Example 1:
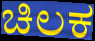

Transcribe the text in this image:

ಚಿಲಕ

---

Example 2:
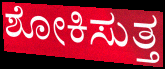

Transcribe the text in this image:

ಶೋಕಿಸುತ್ತ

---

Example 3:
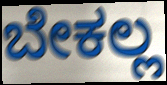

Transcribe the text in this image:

ಬೇಕಲ್ಲ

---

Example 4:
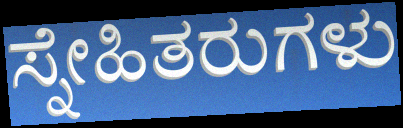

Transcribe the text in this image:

ಸ್ನೇಹಿತರುಗಳು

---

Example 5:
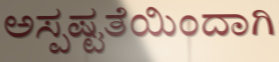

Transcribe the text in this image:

ಅಸ್ಪಷ್ಟತೆಯಿಂದಾಗಿ